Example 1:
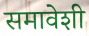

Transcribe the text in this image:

समावेशी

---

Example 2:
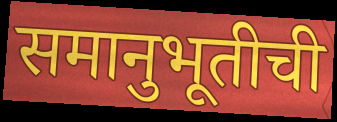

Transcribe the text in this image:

समानुभूतीची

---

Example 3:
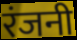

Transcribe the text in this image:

रंजनी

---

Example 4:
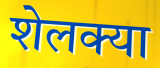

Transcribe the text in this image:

शेलक्या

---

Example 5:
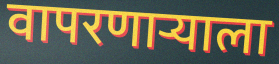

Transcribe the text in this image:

वापरणार्‍याला